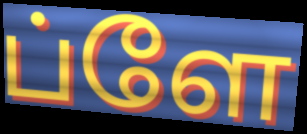
ப்ளே